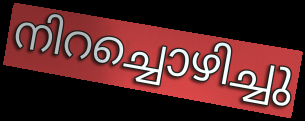
നിറച്ചൊഴിച്ചു